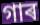
গাৰ